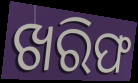
ଖରିଫ